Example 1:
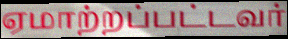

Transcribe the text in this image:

ஏமாற்றப்பட்டவர்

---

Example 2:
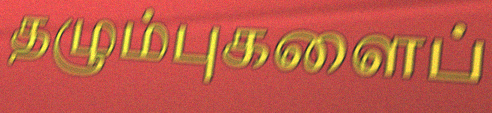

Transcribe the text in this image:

தழும்புகளைப்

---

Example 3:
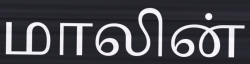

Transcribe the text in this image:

மாலின்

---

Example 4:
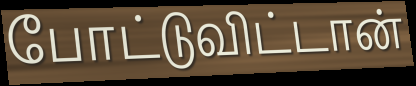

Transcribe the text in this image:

போட்டுவிட்டான்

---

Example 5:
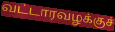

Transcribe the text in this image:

வட்டாரவழக்குச்